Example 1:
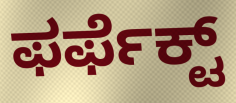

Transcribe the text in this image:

ಫರ್ಫೆಕ್ಟ್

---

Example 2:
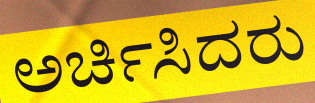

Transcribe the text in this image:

ಅರ್ಚಿಸಿದರು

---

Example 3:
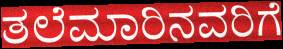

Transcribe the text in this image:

ತಲೆಮಾರಿನವರಿಗೆ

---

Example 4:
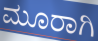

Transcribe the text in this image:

ಮೂರಾಗಿ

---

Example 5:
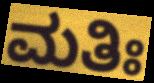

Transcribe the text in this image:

ಮತಿಃ